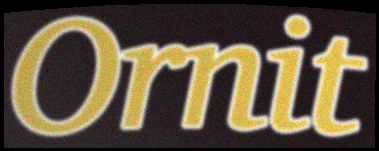
Ornit